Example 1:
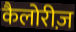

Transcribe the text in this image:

कैलोरीज़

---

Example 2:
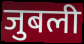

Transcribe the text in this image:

जुबली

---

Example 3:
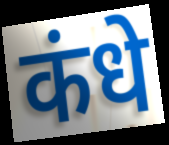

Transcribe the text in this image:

कंधे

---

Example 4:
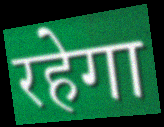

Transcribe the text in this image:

रहेगा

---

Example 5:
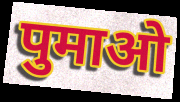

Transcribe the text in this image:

पुमाओ